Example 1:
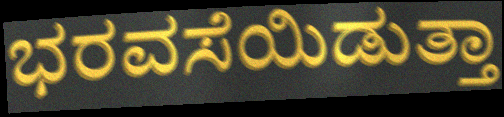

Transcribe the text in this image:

ಭರವಸೆಯಿಡುತ್ತಾ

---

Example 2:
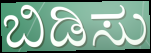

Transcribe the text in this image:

ಬಿಡಿಸು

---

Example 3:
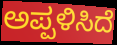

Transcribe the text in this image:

ಅಪ್ಪಳಿಸಿದೆ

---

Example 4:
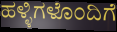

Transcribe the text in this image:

ಹಳ್ಳಿಗಳೊಂದಿಗೆ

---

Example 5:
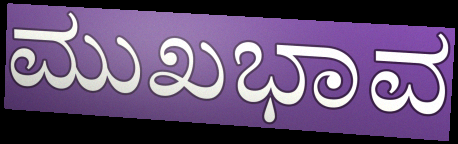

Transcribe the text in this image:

ಮುಖಭಾವ